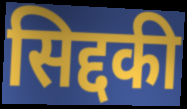
सिद्दकी